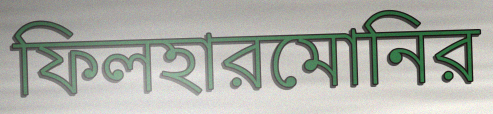
ফিলহারমোনির